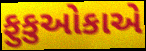
ફુકુઓકાએ